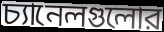
চ্যানেলগুলোর